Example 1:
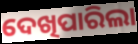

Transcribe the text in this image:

ଦେଖିପାରିଲା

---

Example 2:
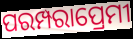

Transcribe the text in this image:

ପରମ୍ପରାପ୍ରେମୀ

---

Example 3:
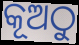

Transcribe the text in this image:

କୂଅଠୁ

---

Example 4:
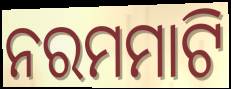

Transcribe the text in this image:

ନରମମାଟି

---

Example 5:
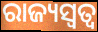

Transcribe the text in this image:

ରାଜ୍ୟସ୍ଵତ୍ଵ